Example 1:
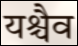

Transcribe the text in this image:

यश्चैव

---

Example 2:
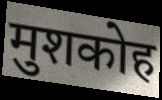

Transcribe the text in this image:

मुशकोह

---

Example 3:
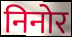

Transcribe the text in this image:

निनोर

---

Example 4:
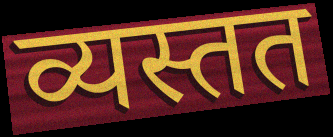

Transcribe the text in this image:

व्यस्तत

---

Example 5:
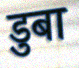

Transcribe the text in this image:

डुबा